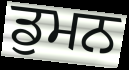
ਡੁਮਨ